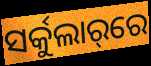
ସର୍କୁଲାର୍‌ରେ